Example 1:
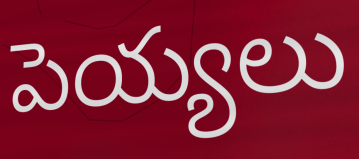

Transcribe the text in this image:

పెయ్యలు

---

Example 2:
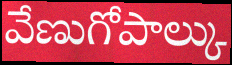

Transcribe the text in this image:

వేణుగోపాల్కు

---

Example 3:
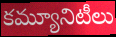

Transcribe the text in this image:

కమ్యూనిటీలు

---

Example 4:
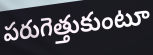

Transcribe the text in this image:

పరుగెత్తుకుంటూ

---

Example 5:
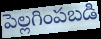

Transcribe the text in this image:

పెల్లగింపబడి